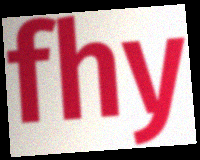
fhy